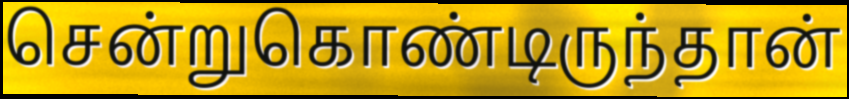
சென்றுகொண்டிருந்தான்